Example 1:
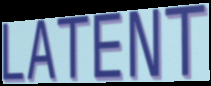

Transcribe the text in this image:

LATENT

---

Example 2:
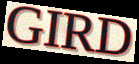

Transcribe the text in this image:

GIRD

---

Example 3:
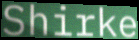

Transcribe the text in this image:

Shirke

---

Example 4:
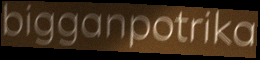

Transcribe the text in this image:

bigganpotrika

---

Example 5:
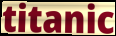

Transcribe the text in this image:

titanic